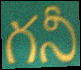
గనీ